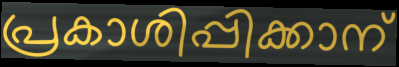
പ്രകാശിപ്പിക്കാന്